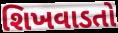
શિખવાડતો